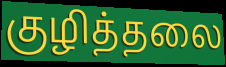
குழித்தலை